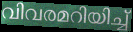
വിവരമറിയിച്ച്